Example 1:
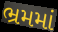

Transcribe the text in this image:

ભ્રમમાં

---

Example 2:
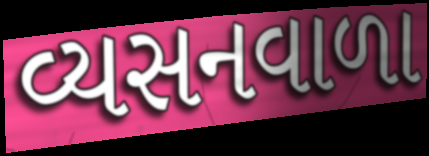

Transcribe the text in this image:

વ્યસનવાળા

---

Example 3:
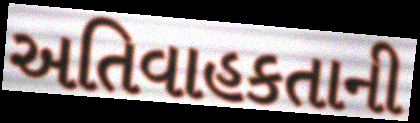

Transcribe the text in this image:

અતિવાહકતાની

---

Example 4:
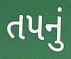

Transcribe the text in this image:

તપનું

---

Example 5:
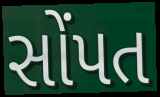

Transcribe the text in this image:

સોંપત